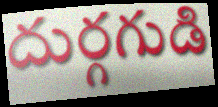
దుర్గగుడి